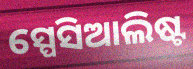
ସ୍ପେସିଆଲିଷ୍ଟ